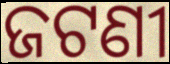
ଜଟଣୀ